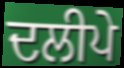
ਦਲੀਪੇ